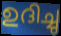
ഉദിച്ചു